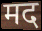
मद